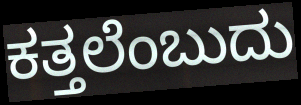
ಕತ್ತಲೆಂಬುದು